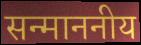
सन्माननीय